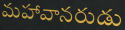
మహావానరుడు